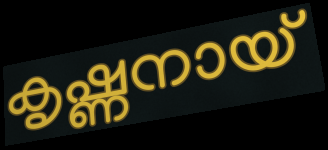
കൃഷ്ണനായ്